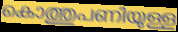
കൊത്തുപണിയുള്ള